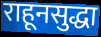
राहूनसुद्धा